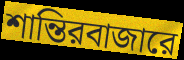
শান্তিরবাজারে